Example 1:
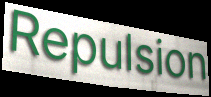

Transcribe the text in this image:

Repulsion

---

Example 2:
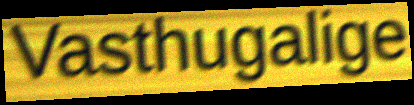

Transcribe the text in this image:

Vasthugalige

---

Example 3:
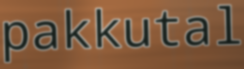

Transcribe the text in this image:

pakkutal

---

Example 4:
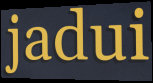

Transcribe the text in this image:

jadui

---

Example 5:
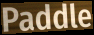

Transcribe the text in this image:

Paddle